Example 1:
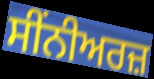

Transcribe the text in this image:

ਸੀਂਨੀਅਰਜ਼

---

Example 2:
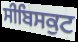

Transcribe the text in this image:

ਸੀਬਿਸਕੁਟ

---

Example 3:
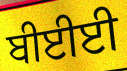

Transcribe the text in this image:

ਬੀਈਈ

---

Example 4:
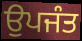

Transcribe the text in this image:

ਉਪਜੰਤ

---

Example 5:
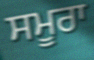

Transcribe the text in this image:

ਸਮੂਰਾ